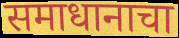
समाधानाचा